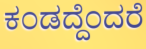
ಕಂಡದ್ದೆಂದರೆ